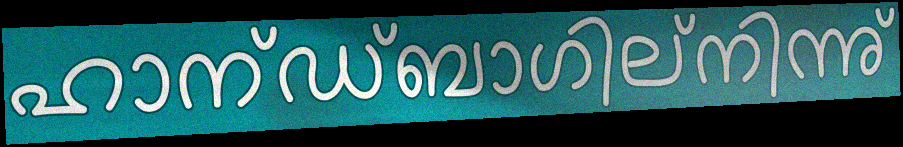
ഹാന്ഡ്ബാഗില്നിന്നു്